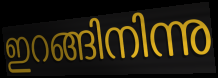
ഇറങ്ങിനിന്നു